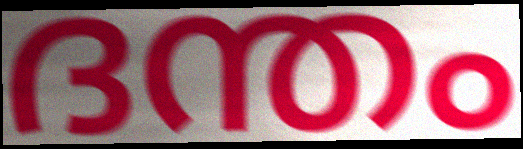
ദന്തം